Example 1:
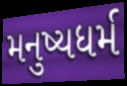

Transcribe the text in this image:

મનુષ્યધર્મ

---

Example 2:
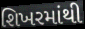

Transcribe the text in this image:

શિખરમાંથી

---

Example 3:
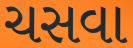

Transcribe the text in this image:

ચસવા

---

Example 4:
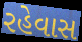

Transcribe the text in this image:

રહેવાસ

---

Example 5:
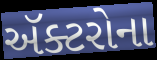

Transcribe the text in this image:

ઍક્ટરોના